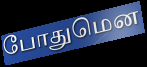
போதுமென